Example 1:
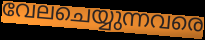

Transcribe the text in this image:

വേലചെയ്യുന്നവരെ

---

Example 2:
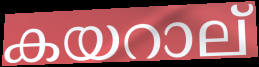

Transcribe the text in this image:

കയറാല്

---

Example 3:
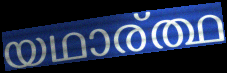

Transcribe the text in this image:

യഥാര്ത്ഥ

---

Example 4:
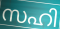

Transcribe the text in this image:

സഹി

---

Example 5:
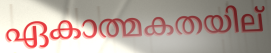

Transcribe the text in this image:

ഏകാത്മകതയില്